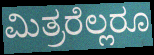
ಮಿತ್ರರೆಲ್ಲರೂ